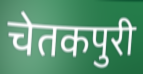
चेतकपुरी